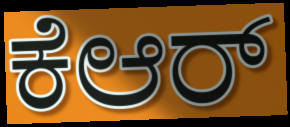
ಕೆಆರ್